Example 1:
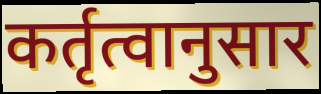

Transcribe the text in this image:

कर्तृत्वानुसार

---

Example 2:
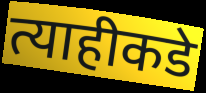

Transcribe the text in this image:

त्याहीकडे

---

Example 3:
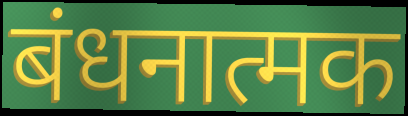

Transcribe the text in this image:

बंधनात्मक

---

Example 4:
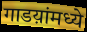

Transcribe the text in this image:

गाडय़ांमध्ये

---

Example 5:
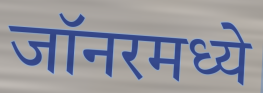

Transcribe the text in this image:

जॉनरमध्ये